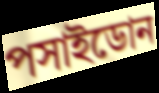
পসাইডোন